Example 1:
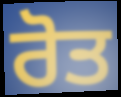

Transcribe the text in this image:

ਰੋਤ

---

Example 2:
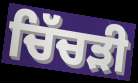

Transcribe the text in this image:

ਚਿੱਚੜੀ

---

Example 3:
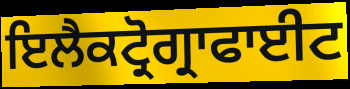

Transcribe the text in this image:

ਇਲੈਕਟ੍ਰੋਗ੍ਰਾਫਾਈਟ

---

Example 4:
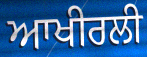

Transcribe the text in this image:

ਆਖੀਰਲੀ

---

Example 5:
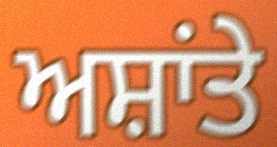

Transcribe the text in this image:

ਅਸ਼ਾਂਤੇ